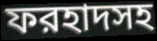
ফরহাদসহ